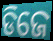
ଡିଜେ